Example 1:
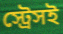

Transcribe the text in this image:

স্ট্রেসই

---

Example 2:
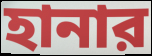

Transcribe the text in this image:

হানার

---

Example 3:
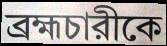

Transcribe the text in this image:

ব্রহ্মচারীকে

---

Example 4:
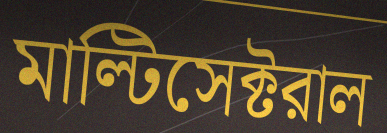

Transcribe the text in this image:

মাল্টিসেক্টরাল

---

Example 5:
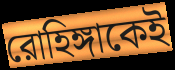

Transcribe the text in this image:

রোহিঙ্গাকেই